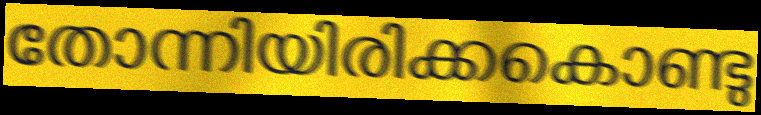
തോന്നിയിരിക്കകൊണ്ടു